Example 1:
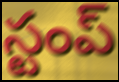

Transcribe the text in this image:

స్టంప్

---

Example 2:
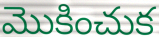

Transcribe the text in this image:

మొకించుక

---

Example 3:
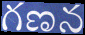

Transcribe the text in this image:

గణన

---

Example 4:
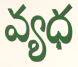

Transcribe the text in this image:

వ్యధ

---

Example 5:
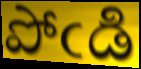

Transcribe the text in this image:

పోఁడి